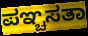
ಪಞ್ಚಸತಾ